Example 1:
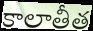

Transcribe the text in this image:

కాలాతీత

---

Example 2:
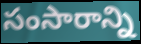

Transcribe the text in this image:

సంసారాన్ని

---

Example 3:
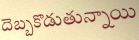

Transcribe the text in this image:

దెబ్బకొడుతున్నాయి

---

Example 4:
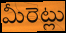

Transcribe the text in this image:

మీరెట్లు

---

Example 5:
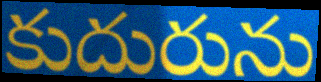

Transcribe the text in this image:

కుదురును